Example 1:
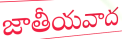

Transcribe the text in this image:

జాతీయవాద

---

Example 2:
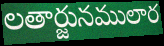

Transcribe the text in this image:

లతార్జునములార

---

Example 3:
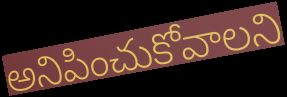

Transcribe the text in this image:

అనిపించుకోవాలని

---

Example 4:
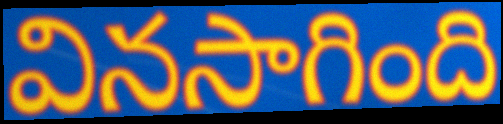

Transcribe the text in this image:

వినసాగింది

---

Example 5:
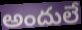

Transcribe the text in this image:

అందులే